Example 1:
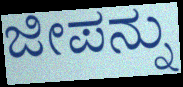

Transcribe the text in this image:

ಜೀಪನ್ನು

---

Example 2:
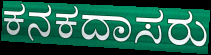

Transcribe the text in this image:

ಕನಕದಾಸರು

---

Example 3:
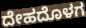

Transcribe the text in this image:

ದೇಹದೊಳಗ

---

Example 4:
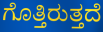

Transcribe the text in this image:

ಗೊತ್ತಿರುತ್ತದೆ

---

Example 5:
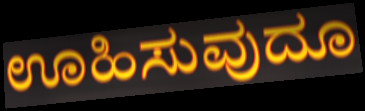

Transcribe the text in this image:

ಊಹಿಸುವುದೂ